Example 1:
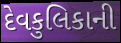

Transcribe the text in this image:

દેવકુલિકાની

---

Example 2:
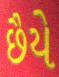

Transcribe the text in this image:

છૈયે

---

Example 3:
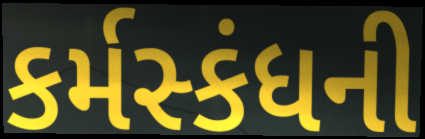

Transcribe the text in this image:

કર્મસ્કંધની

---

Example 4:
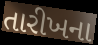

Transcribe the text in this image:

તારીખના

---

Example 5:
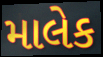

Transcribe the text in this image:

માલેક